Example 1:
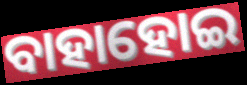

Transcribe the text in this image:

ବାହାହୋଇ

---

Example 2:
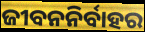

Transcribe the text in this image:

ଜୀବନନିର୍ବାହର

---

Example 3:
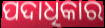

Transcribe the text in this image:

ପଦାଧିକାର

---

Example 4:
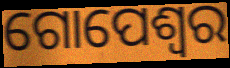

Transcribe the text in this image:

ଗୋପେଶ୍ଵର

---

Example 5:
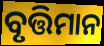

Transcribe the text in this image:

ବୃତ୍ତିମାନ